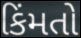
કિંમતો